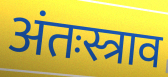
अंतःस्त्राव